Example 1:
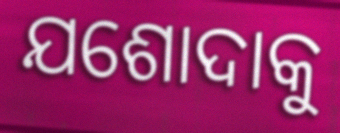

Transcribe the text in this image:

ଯଶୋଦାକୁ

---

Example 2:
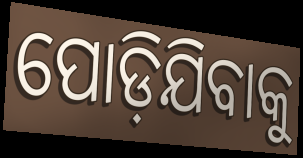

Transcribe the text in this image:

ପୋଡ଼ିଯିବାକୁ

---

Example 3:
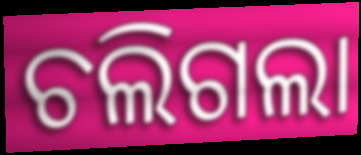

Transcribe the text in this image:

ଚଲିଗଲା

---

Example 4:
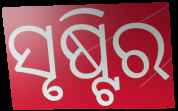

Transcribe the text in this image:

ସୃଷ୍ଟିର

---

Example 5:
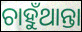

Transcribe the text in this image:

ଚାହୁଁଥାନ୍ତା